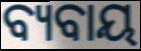
ବ୍ୟବାୟ